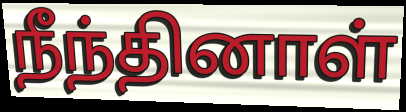
நீந்தினாள்